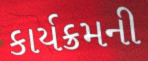
કાર્યક્રમની